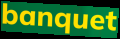
banquet